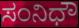
ಸಂನಿಧೌ